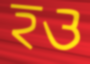
হও